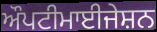
ਔਪਟੀਮਾਈਜੇਸ਼ਨ